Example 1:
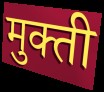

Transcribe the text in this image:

मुक्ती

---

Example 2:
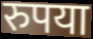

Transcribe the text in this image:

रुपया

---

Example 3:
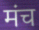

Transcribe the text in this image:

मंच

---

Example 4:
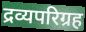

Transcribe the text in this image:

द्रव्यपरिग्रह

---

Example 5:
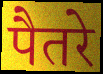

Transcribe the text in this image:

पैतरे